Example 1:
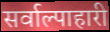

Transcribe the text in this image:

सर्वाल्पाहारी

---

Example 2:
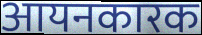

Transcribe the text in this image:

आयनकारक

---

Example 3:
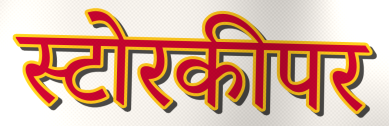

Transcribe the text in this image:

स्टोरकीपर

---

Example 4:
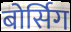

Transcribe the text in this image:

बोर्सिग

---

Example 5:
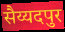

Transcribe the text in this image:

सैय्यदपुर